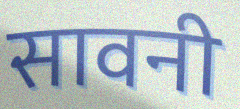
सावनी